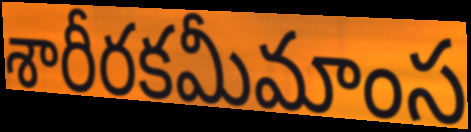
శారీరకమీమాంస